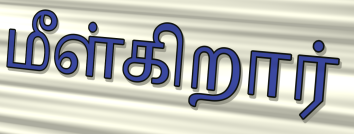
மீள்கிறார்